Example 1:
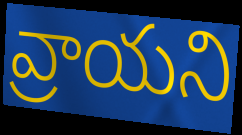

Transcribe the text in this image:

వ్రాయని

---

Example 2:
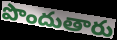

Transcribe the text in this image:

పొందుతారు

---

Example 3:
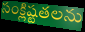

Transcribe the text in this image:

సంక్లిష్టతలను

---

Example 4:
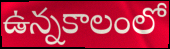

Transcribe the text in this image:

ఉన్నకాలంలో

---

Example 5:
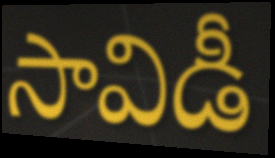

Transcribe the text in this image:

సావిడీ